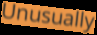
Unusually